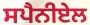
ਸਪੈਨੀਏਲ